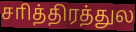
சரித்திரத்துல